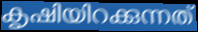
കൃഷിയിറക്കുന്നത്